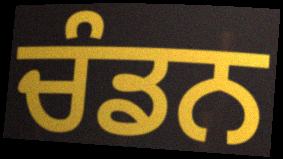
ਚੰਡਨ